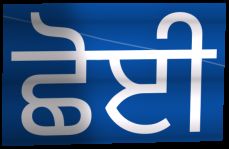
ਛੋਈ